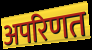
अपरिणत